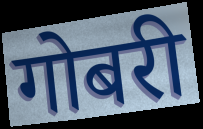
गोबरी